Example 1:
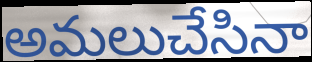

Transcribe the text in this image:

అమలుచేసినా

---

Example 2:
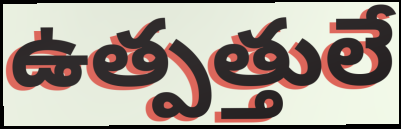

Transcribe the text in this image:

ఉత్పత్తులే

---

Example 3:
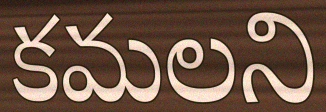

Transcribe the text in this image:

కమలని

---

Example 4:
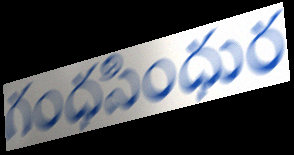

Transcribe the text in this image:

గంధసింధుర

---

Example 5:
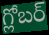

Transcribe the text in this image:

గ్లోబర్